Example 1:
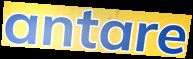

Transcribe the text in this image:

antare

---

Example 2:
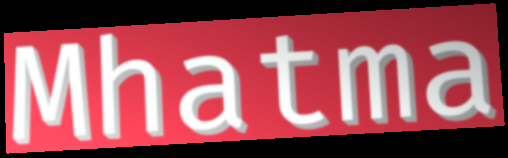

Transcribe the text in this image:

Mhatma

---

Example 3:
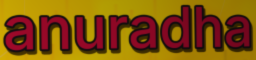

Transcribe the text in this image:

anuradha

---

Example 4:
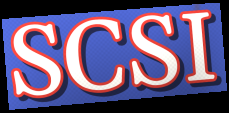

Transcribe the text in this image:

SCSI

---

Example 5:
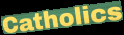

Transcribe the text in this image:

Catholics